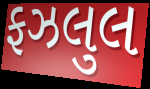
ફઝલુલ